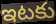
ఇటకు